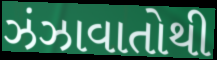
ઝંઝાવાતોથી